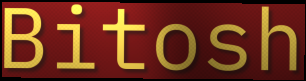
Bitosh